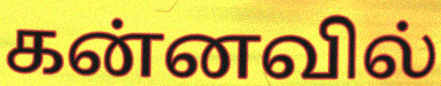
கன்னவில்